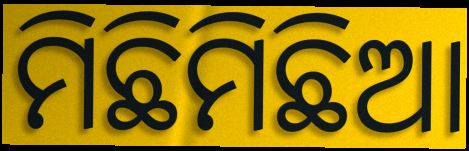
ମିଛିମିଛିଆ